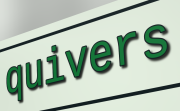
quivers